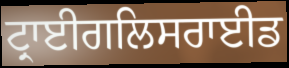
ਟ੍ਰਾਈਗਲਿਸਰਾਈਡ